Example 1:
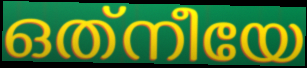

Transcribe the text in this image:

ഒത്‌നീയേ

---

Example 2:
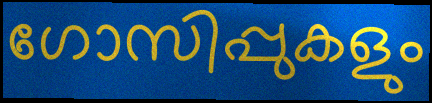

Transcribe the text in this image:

ഗോസിപ്പുകളും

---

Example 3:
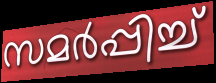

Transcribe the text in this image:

സമർപ്പിച്ച്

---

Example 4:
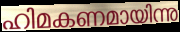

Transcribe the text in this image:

ഹിമകണമായിന്നു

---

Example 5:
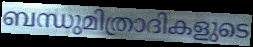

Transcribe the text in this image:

ബന്ധുമിത്രാദികളുടെ